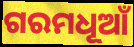
ଗରମଧୂଆଁ